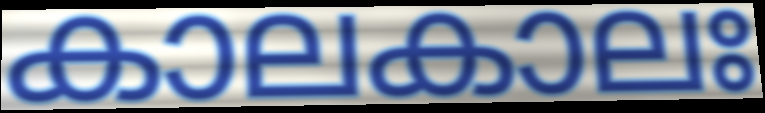
കാലകാലഃ